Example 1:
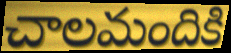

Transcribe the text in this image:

చాలమందికి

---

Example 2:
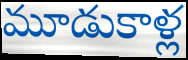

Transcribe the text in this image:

మూడుకాళ్ల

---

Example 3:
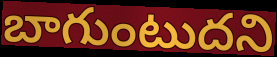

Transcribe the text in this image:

బాగుంటుదని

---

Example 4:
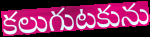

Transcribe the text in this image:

కలుగుటకును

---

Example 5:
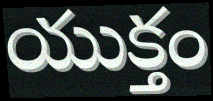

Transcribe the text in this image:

యుక్తం